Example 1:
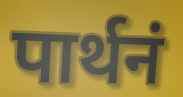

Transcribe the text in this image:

पार्थनं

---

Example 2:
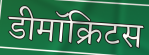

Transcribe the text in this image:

डीमॉक्रिटस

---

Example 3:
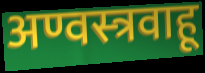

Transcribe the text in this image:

अण्वस्त्रवाहू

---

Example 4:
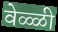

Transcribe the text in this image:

वेळ्ळी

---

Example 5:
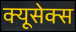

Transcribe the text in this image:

क्यूसेक्स